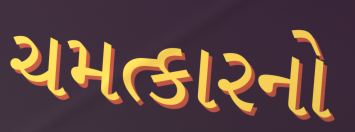
ચમત્કારનો